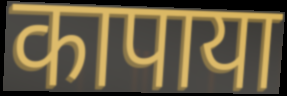
कापाया